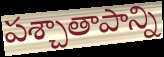
పశ్చాతాపాన్ని